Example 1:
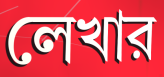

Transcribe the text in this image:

লেখার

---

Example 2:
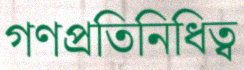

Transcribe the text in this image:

গণপ্রতিনিধিত্ব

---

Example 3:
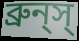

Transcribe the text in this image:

ব্রুন্‌স্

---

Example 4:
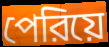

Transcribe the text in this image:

পেরিয়ে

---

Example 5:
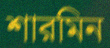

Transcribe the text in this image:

শারমিন